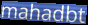
mahadbt